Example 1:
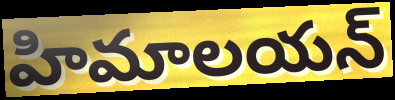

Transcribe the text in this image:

హిమాలయన్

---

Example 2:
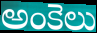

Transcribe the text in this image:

అంకెలు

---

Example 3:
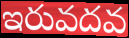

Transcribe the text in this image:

ఇరువదవ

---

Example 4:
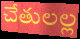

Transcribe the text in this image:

చేతులల్ల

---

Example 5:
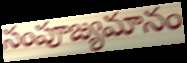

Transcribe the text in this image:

సంపూజ్యమానం